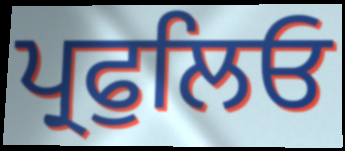
ਪ੍ਰਫੁਲਿਓ